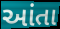
આંતા